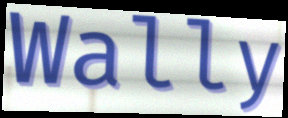
Wally